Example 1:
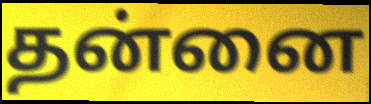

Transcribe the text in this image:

தன்னை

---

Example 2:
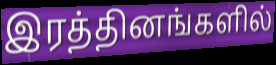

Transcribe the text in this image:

இரத்தினங்களில்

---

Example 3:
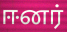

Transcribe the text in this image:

ஈனர்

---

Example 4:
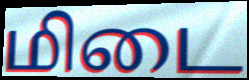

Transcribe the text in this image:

மிடை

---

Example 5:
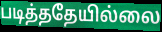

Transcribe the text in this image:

படித்ததேயில்லை